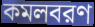
কমলবরণ